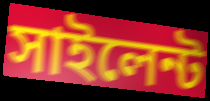
সাইলেন্ট